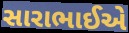
સારાભાઈએ